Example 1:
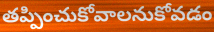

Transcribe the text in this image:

తప్పించుకోవాలనుకోవడం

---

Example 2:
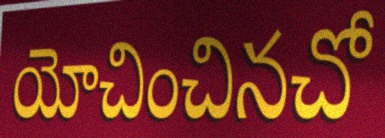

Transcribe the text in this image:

యోచించినచో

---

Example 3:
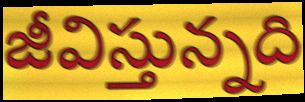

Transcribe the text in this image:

జీవిస్తున్నది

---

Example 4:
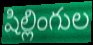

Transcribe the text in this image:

షిల్లింగుల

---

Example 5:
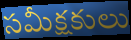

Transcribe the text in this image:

సమీక్షకులు